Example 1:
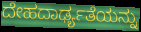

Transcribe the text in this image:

ದೇಹದಾರ್ಢ್ಯತೆಯನ್ನು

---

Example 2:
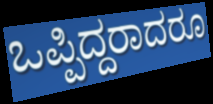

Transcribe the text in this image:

ಒಪ್ಪಿದ್ದರಾದರೂ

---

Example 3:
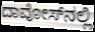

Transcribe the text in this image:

ದಾವೋಸ್‌ನಲ್ಲಿ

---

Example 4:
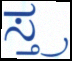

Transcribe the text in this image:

ಸ್ತ್ರ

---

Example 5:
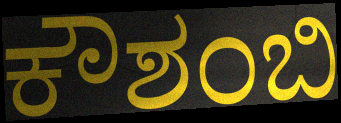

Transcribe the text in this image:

ಕೌಶಂಬಿ